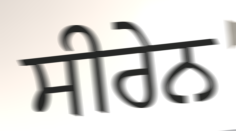
ਸੀਰੇਨ